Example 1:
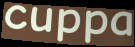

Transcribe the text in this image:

cuppa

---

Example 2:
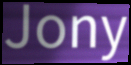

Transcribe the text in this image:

Jony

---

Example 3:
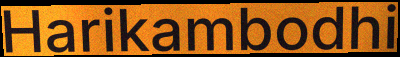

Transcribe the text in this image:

Harikambodhi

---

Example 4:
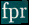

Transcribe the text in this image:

fpr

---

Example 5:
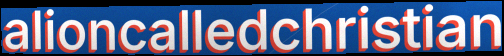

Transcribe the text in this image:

alioncalledchristian